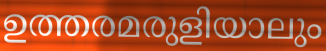
ഉത്തരമരുളിയാലും